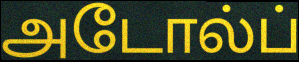
அடோல்ப்